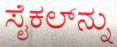
ಸೈಕಲ್‌ನ್ನು